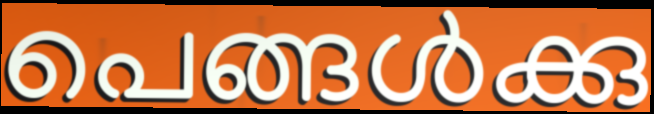
പെങ്ങൾക്കു